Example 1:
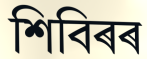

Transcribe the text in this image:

শিবিৰৰ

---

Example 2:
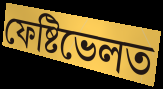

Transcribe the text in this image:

ফেষ্টিভেলত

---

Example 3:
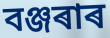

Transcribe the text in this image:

বঞ্জৰাৰ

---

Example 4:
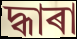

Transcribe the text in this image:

দ্ধাৰা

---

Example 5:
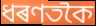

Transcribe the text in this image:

ধৰণতকৈ